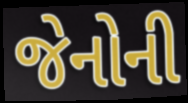
જેનોની